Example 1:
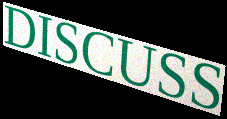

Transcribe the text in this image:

DISCUSS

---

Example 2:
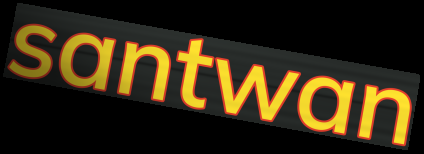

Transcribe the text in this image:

santwan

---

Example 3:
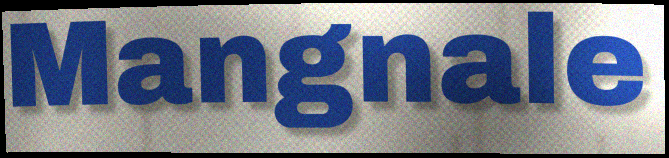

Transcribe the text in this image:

Mangnale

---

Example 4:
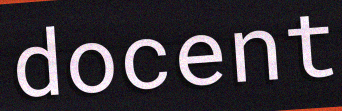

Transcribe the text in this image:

docent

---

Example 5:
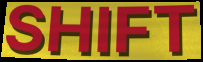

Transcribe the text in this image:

SHIFT